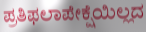
ಪ್ರತಿಫಲಾಪೇಕ್ಷೆಯಿಲ್ಲದ